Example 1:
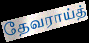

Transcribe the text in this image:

தேவராய்த்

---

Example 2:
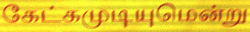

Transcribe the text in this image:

கேட்கமுடியுமென்று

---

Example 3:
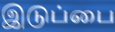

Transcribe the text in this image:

இடுப்பை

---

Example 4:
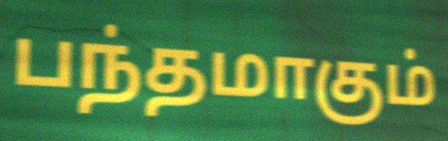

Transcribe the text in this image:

பந்தமாகும்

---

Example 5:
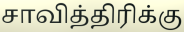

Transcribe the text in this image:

சாவித்திரிக்கு